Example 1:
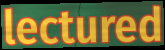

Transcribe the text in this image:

lectured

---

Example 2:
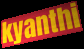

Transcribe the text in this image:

kyanthi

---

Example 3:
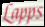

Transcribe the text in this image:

Lapps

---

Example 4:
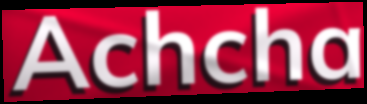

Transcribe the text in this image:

Achcha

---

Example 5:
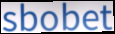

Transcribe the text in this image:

sbobet